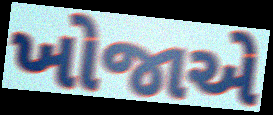
ખોજાએ